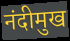
नंदीमुख